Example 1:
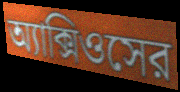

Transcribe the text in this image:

অ্যাক্সিওসের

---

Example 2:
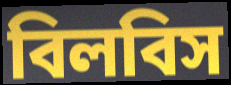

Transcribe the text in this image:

বিলবিস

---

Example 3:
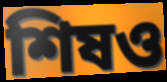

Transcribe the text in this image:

শিষও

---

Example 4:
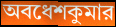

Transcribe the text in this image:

অবধেশকুমার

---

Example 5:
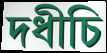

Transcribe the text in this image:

দধীচি